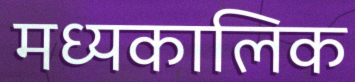
मध्यकालिक